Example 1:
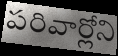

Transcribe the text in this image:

పరివార్లోని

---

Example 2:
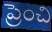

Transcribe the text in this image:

ప్రెంచి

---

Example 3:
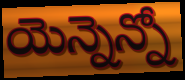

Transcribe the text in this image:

యెన్నెన్నో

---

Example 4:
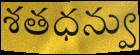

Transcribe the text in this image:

శతధన్వు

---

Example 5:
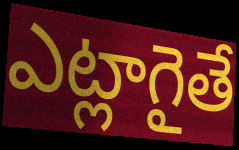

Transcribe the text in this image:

ఎట్లాగైతే